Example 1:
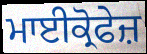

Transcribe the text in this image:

ਮਾਈਕ੍ਰੋਫੇਜ਼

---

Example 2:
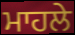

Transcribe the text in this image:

ਮਾਹਲੇ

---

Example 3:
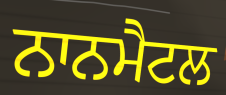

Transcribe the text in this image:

ਨਾਨਮੈਟਲ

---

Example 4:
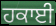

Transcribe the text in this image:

ਹਕਾਈ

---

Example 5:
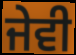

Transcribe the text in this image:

ਜੇਵੀ